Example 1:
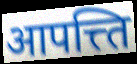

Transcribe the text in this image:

आपत्त्ति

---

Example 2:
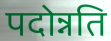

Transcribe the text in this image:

पदोन्नति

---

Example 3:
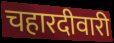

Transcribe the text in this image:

चहारदीवारी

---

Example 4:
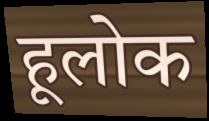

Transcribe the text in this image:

हूलोक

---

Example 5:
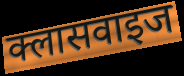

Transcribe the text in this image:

क्लासवाइज